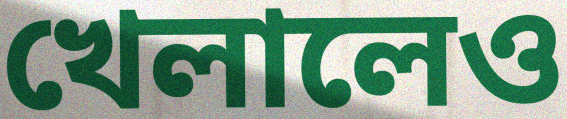
খেলালেও